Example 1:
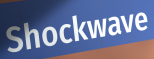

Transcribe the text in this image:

Shockwave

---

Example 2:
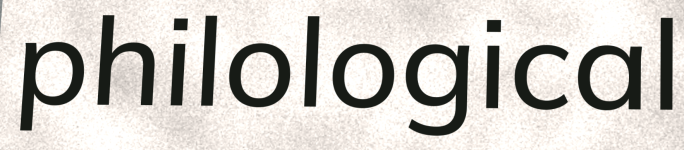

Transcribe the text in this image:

philological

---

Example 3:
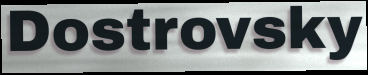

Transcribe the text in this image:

Dostrovsky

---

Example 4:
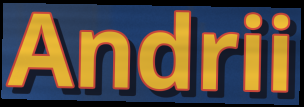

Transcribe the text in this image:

Andrii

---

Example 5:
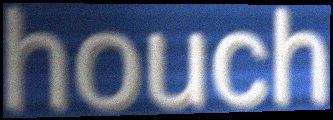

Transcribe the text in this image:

houch